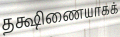
தக்ஷிணையாகக்